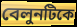
বেলুনটিকে